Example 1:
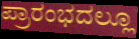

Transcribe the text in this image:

ಪ್ರಾರಂಭದಲ್ಲೂ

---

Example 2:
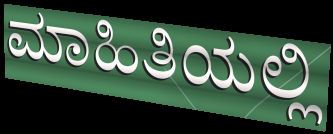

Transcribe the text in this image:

ಮಾಹಿತಿಯಲ್ಲಿ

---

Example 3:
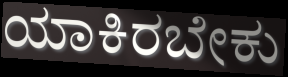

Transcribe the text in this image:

ಯಾಕಿರಬೇಕು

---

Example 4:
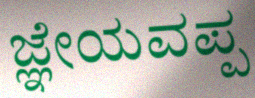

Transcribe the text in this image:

ಜ್ಞೇಯವಪ್ಪ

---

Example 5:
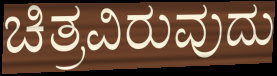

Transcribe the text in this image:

ಚಿತ್ರವಿರುವುದು